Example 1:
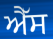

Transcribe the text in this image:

ਐੱਸ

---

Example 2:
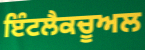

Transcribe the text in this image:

ਇੰਟਲੈਕਚੂਅਲ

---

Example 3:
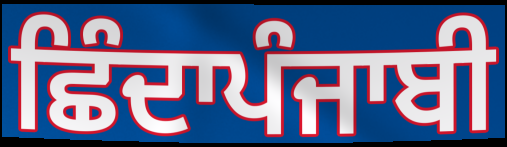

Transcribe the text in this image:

ਛਿੰਦਾਪੰਜਾਬੀ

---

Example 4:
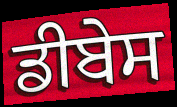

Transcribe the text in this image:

ਡੀਬੇਸ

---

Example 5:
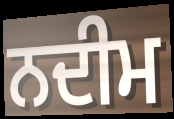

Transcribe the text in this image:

ਨਦੀਮ